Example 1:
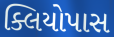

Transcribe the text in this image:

ક્લિયોપાસ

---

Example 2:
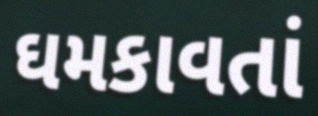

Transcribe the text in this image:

ઘમકાવતાં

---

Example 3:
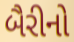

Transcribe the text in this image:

બૈરીનો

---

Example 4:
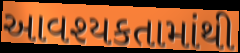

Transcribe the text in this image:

આવશ્યકતામાંથી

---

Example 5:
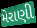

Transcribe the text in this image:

મેરાણી